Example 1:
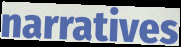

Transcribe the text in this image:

narratives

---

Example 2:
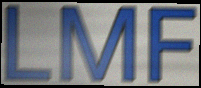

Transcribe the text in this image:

LMF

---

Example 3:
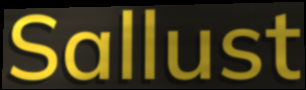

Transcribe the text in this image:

Sallust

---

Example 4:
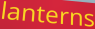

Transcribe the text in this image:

lanterns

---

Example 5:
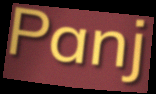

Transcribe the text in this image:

Panj